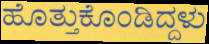
ಹೊತ್ತುಕೊಂಡಿದ್ದಳು